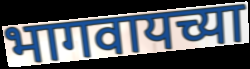
भागवायच्या